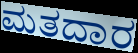
ಮತದಾರ